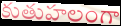
కుతుహలంగా